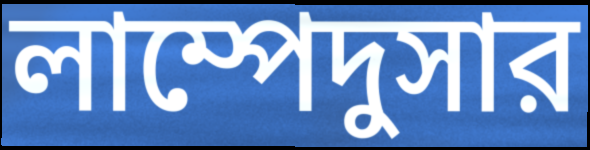
লাম্পেদুসার